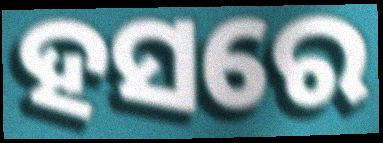
ହସରେ